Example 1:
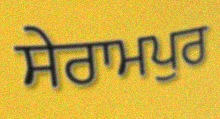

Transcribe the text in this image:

ਸੇਰਾਮਪੁਰ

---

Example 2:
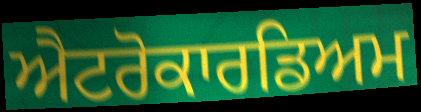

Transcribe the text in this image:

ਐਟਰੋਕਾਰਡਿਅਮ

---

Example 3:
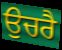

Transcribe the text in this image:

ਉਚਰੈ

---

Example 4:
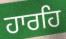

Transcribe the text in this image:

ਹਾਰਹਿ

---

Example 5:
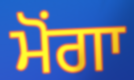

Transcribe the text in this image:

ਮੋਂਗਾ